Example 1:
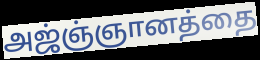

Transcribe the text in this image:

அஜ்ஞ்ஞானத்தை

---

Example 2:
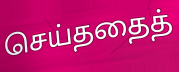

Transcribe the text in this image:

செய்ததைத்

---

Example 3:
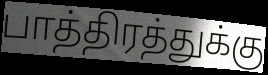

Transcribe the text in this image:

பாத்திரத்துக்கு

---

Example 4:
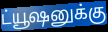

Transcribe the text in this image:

ட்யூஷனுக்கு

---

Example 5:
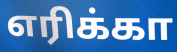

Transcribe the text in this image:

எரிக்கா